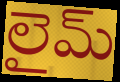
లైమ్